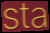
sta